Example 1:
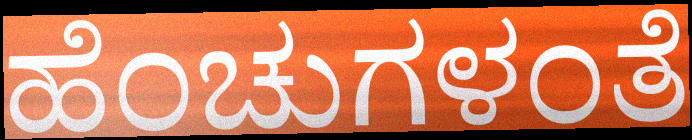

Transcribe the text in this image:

ಹೆಂಚುಗಳಂತೆ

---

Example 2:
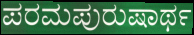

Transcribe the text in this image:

ಪರಮಪುರುಷಾರ್ಥ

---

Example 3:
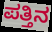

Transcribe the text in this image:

ಪತ್ತಿನ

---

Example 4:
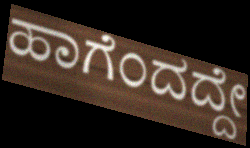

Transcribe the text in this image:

ಹಾಗೆಂದದ್ದೇ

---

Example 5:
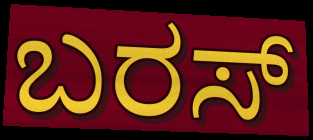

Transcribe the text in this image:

ಬರಸ್